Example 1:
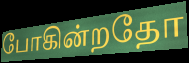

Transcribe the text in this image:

போகின்றதோ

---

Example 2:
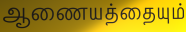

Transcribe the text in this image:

ஆணையத்தையும்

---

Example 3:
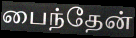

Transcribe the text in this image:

பைந்தேன்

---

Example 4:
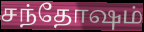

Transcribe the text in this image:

சந்தோஷம்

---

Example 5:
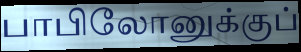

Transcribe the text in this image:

பாபிலோனுக்குப்